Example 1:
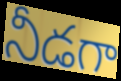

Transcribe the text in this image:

నీడగా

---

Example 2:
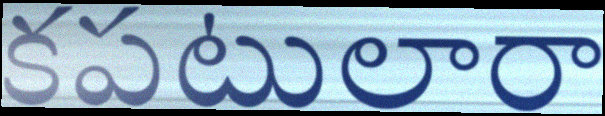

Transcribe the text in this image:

కపటులారా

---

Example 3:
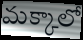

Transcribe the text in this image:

మక్కాలో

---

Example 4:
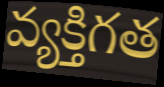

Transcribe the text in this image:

వ్యక్తిగత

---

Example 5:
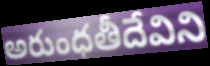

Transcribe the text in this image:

అరుంధతీదేవిని